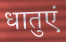
धातुएं